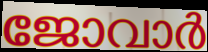
ജോവാർ